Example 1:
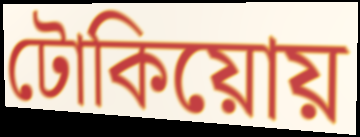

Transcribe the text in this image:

টোকিয়োয়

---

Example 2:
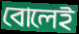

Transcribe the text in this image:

বোলেই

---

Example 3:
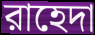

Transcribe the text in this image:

রাহেদা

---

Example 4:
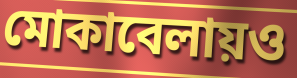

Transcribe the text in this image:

মোকাবেলায়ও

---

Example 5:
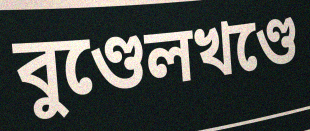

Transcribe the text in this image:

বুণ্ডেলখণ্ডে